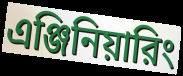
এঞ্জিনিয়ারিং